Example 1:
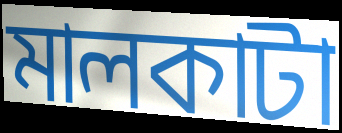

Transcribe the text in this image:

মালকাটা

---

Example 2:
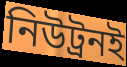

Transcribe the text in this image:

নিউট্রনই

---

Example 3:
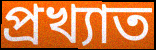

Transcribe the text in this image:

প্রখ্যাত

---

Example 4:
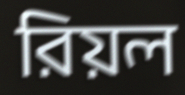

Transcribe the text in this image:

রিয়ল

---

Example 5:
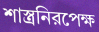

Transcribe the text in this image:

শাস্ত্রনিরপেক্ষ